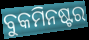
ବୁକମିନଷ୍ଟର